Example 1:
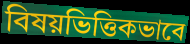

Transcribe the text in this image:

বিষয়ভিত্তিকভাবে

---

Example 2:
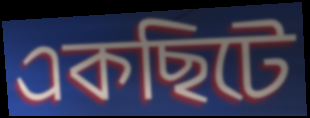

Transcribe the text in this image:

একছিটে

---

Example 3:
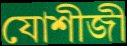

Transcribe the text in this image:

যোশীজী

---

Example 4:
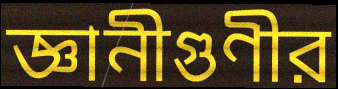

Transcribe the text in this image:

জ্ঞানীগুণীর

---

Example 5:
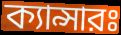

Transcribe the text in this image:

ক্যান্সারঃ